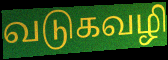
வடுகவழி